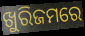
ଖୁରିଜମରେ